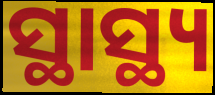
ସ୍ଥାସ୍ଥ୍ୟ